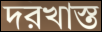
দরখাস্ত